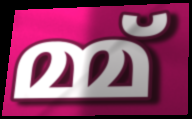
മ്മ്